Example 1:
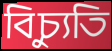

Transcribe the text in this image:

বিচ্যুতি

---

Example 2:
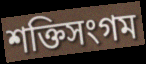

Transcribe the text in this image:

শক্তিসংগম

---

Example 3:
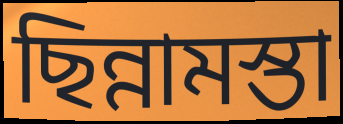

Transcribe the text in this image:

ছিন্নামস্তা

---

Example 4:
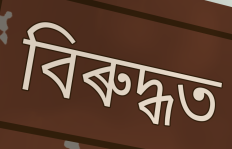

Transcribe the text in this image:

বিৰুদ্ধত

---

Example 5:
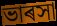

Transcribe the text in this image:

ভাৰসা